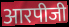
आरपीजी